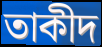
তাকীদ